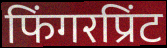
फिंगरप्रिंट